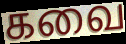
கவை